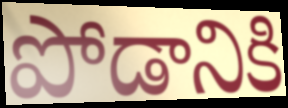
పోడానికి